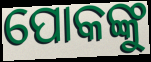
ପୋକଙ୍କୁ